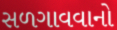
સળગાવવાનો